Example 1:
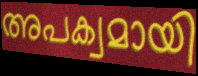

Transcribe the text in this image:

അപക്വമായി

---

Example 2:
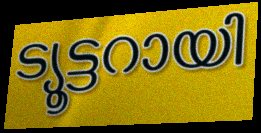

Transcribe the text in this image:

ട്യൂട്ടറായി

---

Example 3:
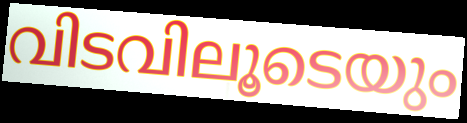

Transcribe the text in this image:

വിടവിലൂടെയും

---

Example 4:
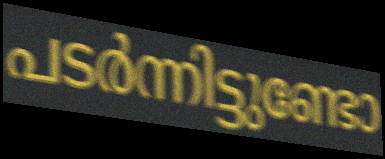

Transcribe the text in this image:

പടർന്നിട്ടുണ്ടോ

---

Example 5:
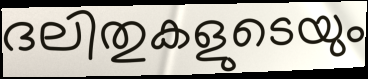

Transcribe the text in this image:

ദലിതുകളുടെയും